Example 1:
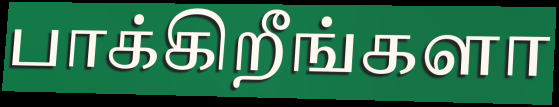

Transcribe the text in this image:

பாக்கிறீங்களா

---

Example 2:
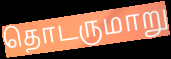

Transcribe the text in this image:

தொடருமாறு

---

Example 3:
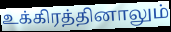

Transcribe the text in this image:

உக்கிரத்தினாலும்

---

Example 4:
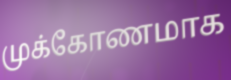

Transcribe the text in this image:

முக்கோணமாக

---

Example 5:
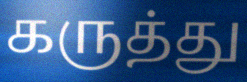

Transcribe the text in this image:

கருத்து